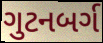
ગુટનબર્ગ